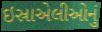
ઇસ્રાએલીઓનું